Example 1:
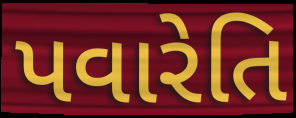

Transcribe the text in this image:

પવારેતિ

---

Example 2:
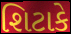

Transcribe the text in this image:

શિટાકે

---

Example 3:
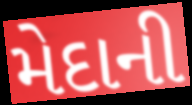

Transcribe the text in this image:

મેદાની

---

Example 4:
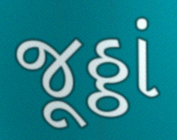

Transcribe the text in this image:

જૂઠ્ઠાં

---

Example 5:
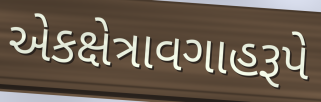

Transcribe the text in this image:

એકક્ષેત્રાવગાહરૂપે